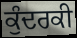
ਕੁੰਦਰਕੀ